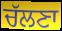
ਚੱਲਣਾ